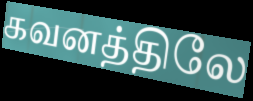
கவனத்திலே